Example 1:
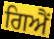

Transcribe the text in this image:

ਗਿਐਂ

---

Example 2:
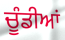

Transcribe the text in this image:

ਚੂੰਡੀਆਂ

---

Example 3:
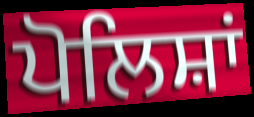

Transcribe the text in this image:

ਪੋਲਿਸ਼ਾਂ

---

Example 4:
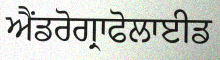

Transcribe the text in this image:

ਐਂਡਰੋਗ੍ਰਾਫੋਲਾਈਡ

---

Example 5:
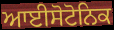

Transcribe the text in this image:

ਆਈਸੋਟੋਨਿਕ